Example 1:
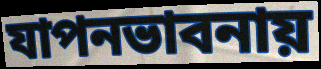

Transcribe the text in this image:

যাপনভাবনায়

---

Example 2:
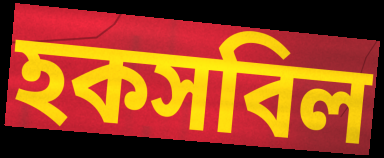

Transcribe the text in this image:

হকসবিল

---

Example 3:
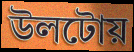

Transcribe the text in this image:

উলটোয়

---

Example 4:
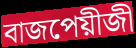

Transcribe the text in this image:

বাজপেয়ীজী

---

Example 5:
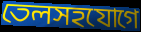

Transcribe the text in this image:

তেলসহযোগে